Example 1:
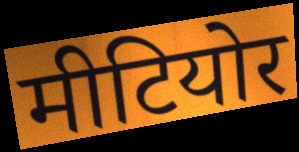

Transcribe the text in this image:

मीटियोर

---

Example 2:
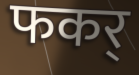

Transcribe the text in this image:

फकर्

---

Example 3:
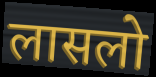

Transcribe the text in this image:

लासलो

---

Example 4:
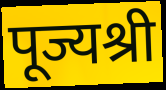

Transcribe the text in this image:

पूज्यश्री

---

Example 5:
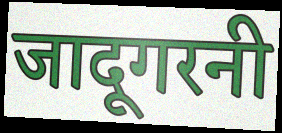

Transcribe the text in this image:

जादूगरनी